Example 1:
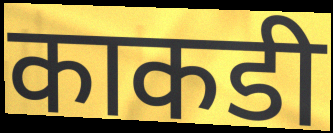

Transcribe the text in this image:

काकडी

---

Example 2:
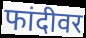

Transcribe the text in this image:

फांदीवर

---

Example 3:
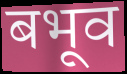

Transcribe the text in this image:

बभूव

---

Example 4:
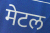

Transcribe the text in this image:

मेटल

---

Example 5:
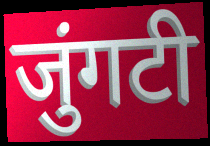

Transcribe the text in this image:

जुंगटी